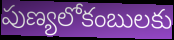
పుణ్యలోకంబులకు